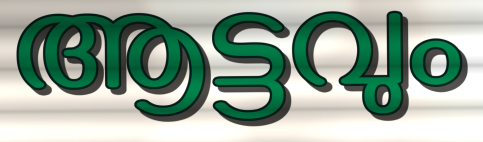
ആട്ടവും